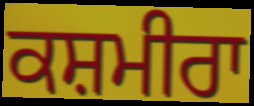
ਕਸ਼ਮੀਰਾ